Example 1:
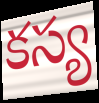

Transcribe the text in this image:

కస్య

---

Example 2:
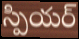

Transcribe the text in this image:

స్పియర్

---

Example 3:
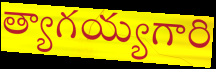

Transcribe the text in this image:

త్యాగయ్యగారి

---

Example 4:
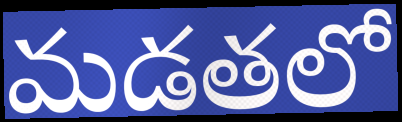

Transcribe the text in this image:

మడతలో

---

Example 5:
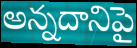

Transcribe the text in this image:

అన్నదానిపై